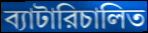
ব্যাটারিচালিত